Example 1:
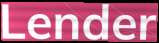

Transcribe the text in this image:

Lender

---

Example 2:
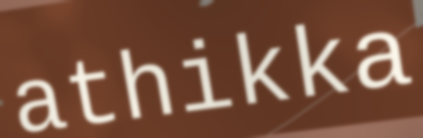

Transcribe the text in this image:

athikka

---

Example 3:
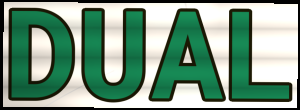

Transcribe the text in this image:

DUAL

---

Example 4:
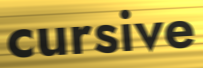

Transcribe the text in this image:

cursive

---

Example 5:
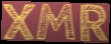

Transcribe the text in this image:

XMR